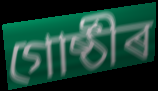
গোষ্ঠীৰ